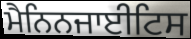
ਮੈਨਿਨਜਾਈਟਿਸ